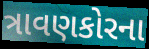
ત્રાવણકોરના